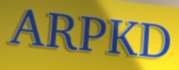
ARPKD